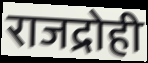
राजद्रोही